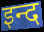
इन्द